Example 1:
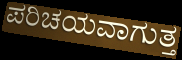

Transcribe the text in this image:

ಪರಿಚಯವಾಗುತ್ತ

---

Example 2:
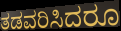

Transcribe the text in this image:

ತಡವರಿಸಿದರೂ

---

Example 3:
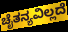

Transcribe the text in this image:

ಚೈತನ್ಯವಿಲ್ಲದೆ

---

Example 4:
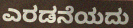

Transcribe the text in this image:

ಎರಡನೆಯದು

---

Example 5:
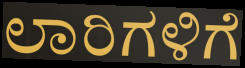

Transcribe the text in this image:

ಲಾರಿಗಳಿಗೆ